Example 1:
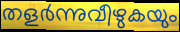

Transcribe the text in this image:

തളർന്നുവീഴുകയും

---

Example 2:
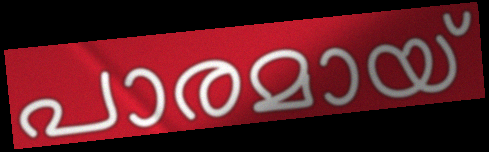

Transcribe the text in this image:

പാരമായ്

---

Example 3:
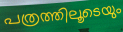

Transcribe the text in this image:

പത്രത്തിലൂടെയും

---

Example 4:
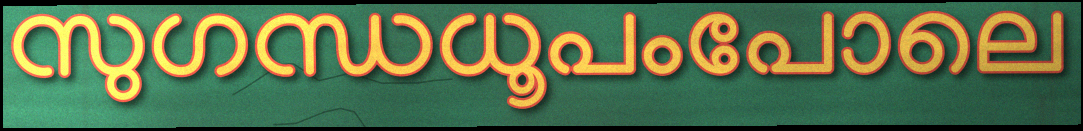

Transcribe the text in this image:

സുഗന്ധധൂപംപോലെ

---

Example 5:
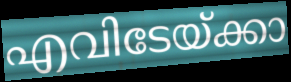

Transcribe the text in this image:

എവിടേയ്ക്കാ